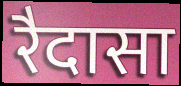
रैदासा